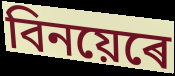
বিনয়েৰে